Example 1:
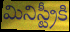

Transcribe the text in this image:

మినిస్ట్రీకి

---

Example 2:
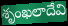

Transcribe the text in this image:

శృంఖలాదేవి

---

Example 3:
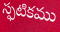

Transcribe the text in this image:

స్ఫటికము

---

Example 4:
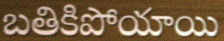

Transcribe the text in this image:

బతికిపోయాయి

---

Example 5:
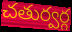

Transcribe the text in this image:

చతుర్వర్గ